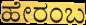
ಹೇರಂಬ